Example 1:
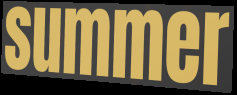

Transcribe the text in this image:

summer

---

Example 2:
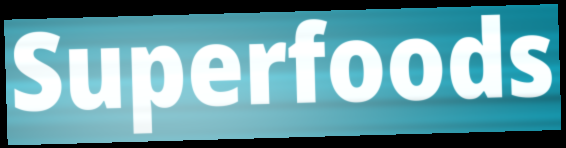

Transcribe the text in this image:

Superfoods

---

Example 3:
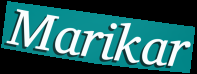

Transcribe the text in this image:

Marikar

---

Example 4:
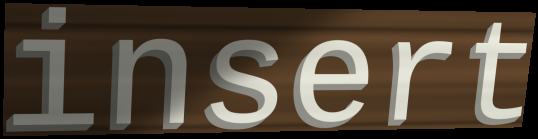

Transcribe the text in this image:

insert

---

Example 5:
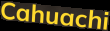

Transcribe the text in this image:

Cahuachi